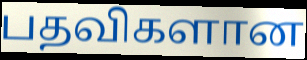
பதவிகளான